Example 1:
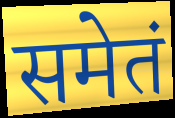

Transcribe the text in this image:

समेतं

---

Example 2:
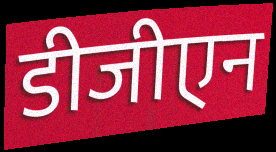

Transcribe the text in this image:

डीजीएन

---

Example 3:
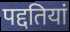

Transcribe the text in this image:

पद्दतियां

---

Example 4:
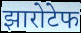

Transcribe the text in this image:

झारोटेफ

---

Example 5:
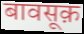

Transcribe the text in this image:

बावसूक़